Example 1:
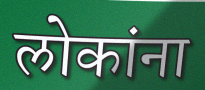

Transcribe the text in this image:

लोकांना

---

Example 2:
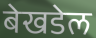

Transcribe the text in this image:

बेखडेल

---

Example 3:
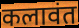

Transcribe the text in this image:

कलावंत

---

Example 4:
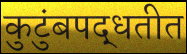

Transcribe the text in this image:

कुटुंबपद्धतीत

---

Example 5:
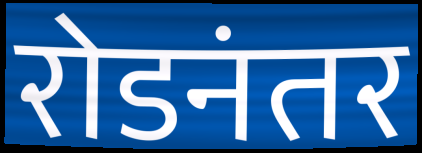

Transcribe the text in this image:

रोडनंतर